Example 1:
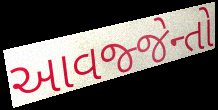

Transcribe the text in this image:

આવજ્જેન્તો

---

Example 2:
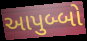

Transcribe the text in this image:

આપુબ્બો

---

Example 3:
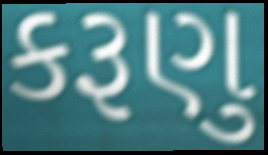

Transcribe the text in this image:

કરૂણુ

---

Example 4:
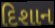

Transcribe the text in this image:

દિશાન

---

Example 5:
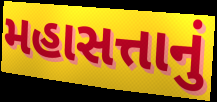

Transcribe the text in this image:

મહાસત્તાનું